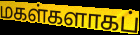
மகள்களாகப்